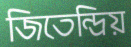
জিতেন্দ্রিয়